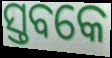
ସ୍ତବକେ